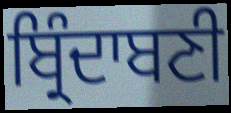
ਬ੍ਰਿੰਦਾਬਣੀ